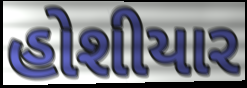
હોશીયાર